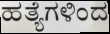
ಹತ್ಯೆಗಳಿಂದ